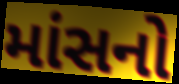
માંસનો